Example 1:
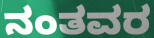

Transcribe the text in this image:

ನಂತವರ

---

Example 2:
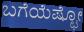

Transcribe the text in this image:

ಬಗೆಯೆಷ್ಟೋ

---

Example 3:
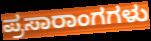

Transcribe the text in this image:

ಪ್ರಸಾರಾಂಗಗಳು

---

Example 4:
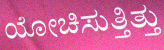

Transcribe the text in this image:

ಯೋಚಿಸುತ್ತಿತ್ತು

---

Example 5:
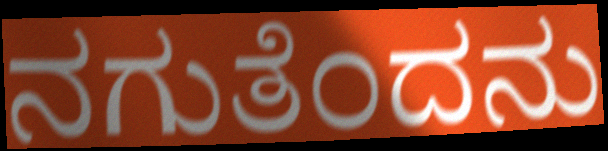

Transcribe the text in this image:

ನಗುತೆಂದನು